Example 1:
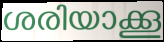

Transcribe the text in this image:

ശരിയാക്കൂ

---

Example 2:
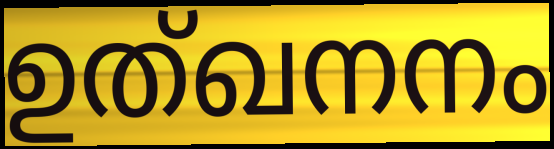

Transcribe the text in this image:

ഉത്ഖനനം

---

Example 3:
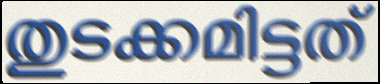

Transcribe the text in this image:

തുടക്കമിട്ടത്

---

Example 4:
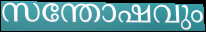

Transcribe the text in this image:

സന്തോഷവും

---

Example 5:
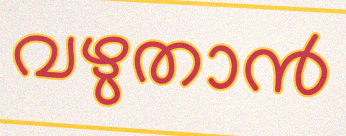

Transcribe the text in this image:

വഴുതാൻ